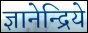
ज्ञानेन्द्रिये